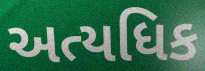
અત્યધિક